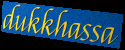
dukkhassa